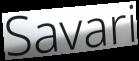
Savari